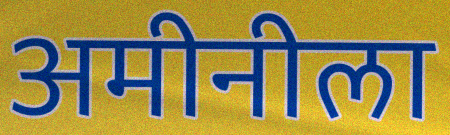
अमीनीला